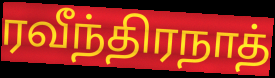
ரவீந்திரநாத்